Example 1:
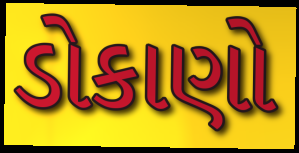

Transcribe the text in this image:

ડોકાણો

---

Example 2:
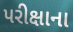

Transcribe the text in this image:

પરીક્ષાના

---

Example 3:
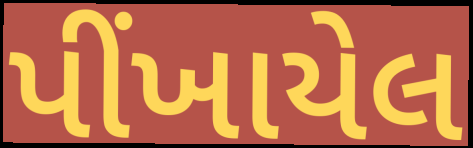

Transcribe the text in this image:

પીંખાયેલ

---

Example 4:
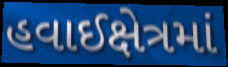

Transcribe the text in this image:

હવાઈક્ષેત્રમાં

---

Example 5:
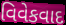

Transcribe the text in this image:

વિવેકવાદ